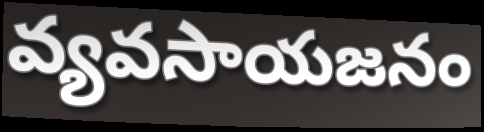
వ్యవసాయజనం